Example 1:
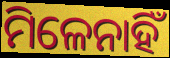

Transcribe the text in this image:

ମିଳେନାହିଁ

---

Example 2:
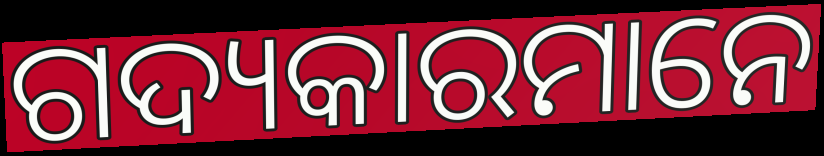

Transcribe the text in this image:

ଗଦ୍ୟକାରମାନେ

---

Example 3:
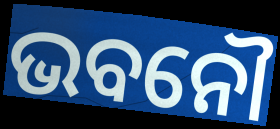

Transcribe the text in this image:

ଭବନୌ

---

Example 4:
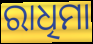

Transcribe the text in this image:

ରାଧିମା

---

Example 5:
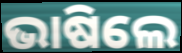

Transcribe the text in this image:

ଭାଷିଲେ